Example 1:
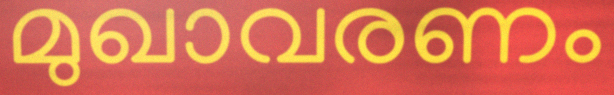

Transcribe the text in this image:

മുഖാവരണം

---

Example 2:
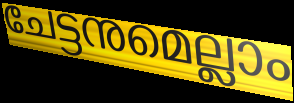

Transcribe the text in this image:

ചേട്ടനുമെല്ലാം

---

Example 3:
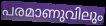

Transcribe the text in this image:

പരമാണുവിലും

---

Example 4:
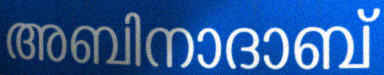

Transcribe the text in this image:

അബിനാദാബ്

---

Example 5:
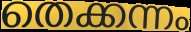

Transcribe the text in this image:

തെക്കന്നം